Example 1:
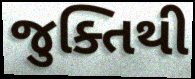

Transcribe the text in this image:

જુક્તિથી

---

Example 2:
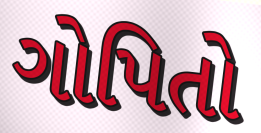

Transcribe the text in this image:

ગોપિતો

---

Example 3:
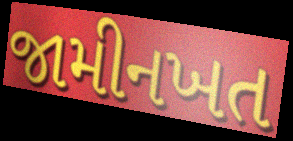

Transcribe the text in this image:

જામીનખત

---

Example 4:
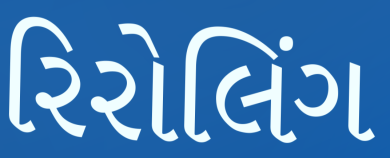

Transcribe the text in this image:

રિરોલિંગ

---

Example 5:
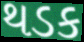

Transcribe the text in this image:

થડક